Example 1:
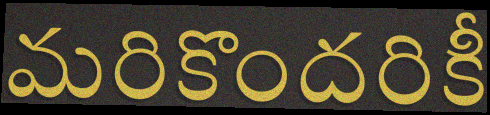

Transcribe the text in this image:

మరికొందరికీ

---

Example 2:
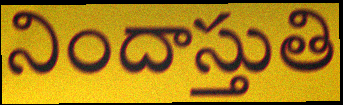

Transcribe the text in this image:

నిందాస్తుతి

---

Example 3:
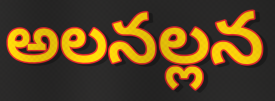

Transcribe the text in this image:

అలనల్లన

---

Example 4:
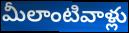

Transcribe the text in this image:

మీలాంటివాళ్లు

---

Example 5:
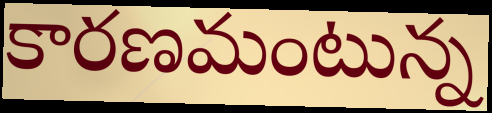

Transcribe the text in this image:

కారణమంటున్న